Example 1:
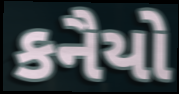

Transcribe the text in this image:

કનૈયો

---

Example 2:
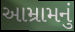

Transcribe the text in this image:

આમ્રામનું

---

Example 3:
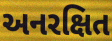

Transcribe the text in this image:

અનરક્ષિત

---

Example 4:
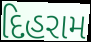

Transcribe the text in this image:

દિહરામ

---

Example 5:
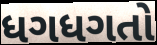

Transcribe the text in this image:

ધગધગતો